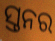
ସ୍ତନର